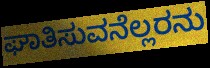
ಘಾತಿಸುವನೆಲ್ಲರನು